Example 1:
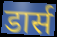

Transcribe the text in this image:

डार्स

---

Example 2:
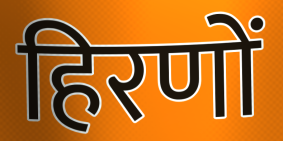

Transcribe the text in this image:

हिरणों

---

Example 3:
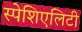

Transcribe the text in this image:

स्पेशिएलिटी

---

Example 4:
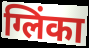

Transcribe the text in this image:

ग्लिंका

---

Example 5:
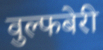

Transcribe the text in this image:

वुल्फबेरी